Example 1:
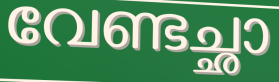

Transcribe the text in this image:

വേണ്ടച്ഛാ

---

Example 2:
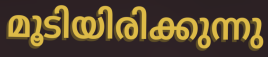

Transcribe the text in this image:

മൂടിയിരിക്കുന്നു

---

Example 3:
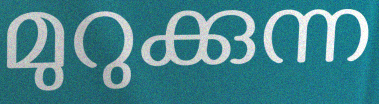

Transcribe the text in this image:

മുറുക്കുന്ന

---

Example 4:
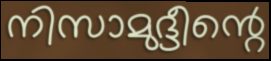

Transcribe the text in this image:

നിസാമുദ്ദീന്റെ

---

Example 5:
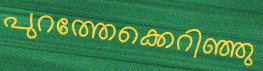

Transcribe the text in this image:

പുറത്തേക്കെറിഞ്ഞു